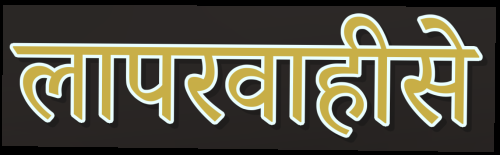
लापरवाहीसे